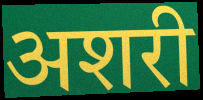
अशरी